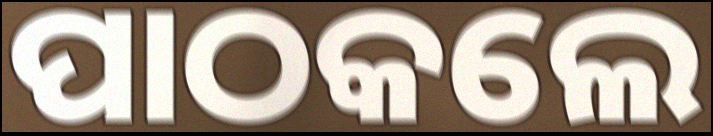
ପାଠକଲେ